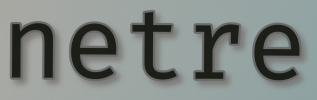
netre